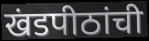
खंडपीठांची